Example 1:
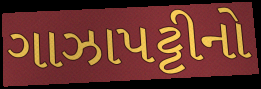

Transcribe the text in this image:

ગાઝાપટ્ટીનો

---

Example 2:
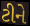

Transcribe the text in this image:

ટીને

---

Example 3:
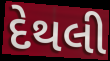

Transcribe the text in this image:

દેથલી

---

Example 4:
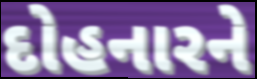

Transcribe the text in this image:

દોહનારને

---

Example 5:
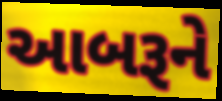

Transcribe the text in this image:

આબરૂને